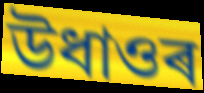
উধাওৰ